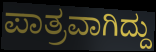
ಪಾತ್ರವಾಗಿದ್ದು